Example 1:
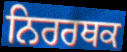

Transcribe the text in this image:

ਨਿਰਰਥਕ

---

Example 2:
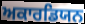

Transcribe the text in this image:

ਅਕਾਰਡਿਯਨ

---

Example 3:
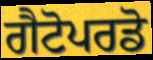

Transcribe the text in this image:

ਗੈਟੋਪਰਡੋ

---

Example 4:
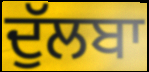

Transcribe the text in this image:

ਦੁੱਲਬਾ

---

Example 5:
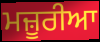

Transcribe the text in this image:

ਮਜ਼ੂਰੀਆ